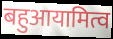
बहुआयामित्व